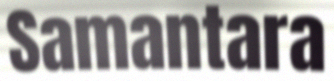
Samantara